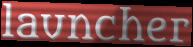
launcher